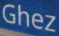
Ghez